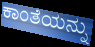
ಕಾಂತೆಯನ್ನು